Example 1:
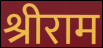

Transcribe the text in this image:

श्रीराम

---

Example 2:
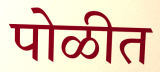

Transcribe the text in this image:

पोळीत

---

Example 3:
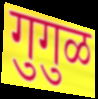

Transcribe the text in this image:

गुगुळ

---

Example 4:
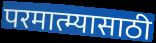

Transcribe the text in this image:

परमात्म्यासाठी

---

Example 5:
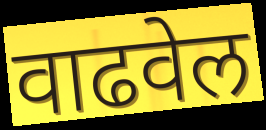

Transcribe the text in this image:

वाढवेल